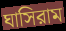
ঘাসিরাম